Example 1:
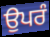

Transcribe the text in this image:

ਉਪਰੰ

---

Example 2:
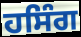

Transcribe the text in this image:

ਹਸਿੰਗ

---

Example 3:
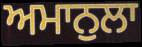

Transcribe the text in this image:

ਅਮਾਨੁਲਾ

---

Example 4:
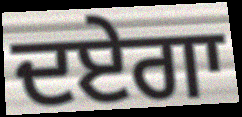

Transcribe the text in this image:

ਦਏਗਾ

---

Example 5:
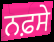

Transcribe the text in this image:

ਨਫ਼ਸੇ